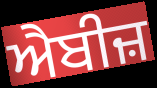
ਐਬੀਜ਼